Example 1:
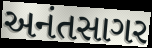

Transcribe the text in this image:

અનંતસાગર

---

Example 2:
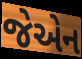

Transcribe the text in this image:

જેએન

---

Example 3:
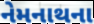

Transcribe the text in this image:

નેમનાથના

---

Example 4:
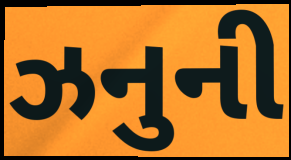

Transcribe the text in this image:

ઝનુની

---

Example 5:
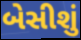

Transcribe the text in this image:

બેસીશું